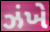
ઝંખે